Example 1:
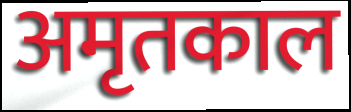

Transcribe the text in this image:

अमृतकाल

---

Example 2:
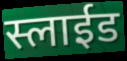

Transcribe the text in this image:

स्लाईड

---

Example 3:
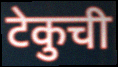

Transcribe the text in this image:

टेकुची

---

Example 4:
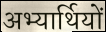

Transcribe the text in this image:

अभ्यार्थियों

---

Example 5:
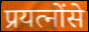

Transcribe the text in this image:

प्रयत्नोंसे